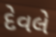
દેવલે